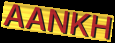
AANKH